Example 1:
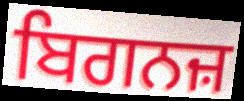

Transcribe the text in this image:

ਬਿਗਨਜ਼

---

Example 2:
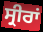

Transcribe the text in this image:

ਸ੍ਰੀਰਾਂ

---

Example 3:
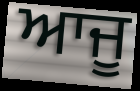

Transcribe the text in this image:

ਆਜੂ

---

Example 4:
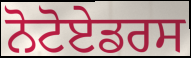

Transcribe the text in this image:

ਨੋਟੋਏਡਰਸ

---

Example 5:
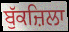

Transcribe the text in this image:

ਬੁੱਕਜ਼ਿਲਾ